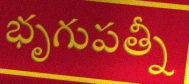
భృగుపత్నీ